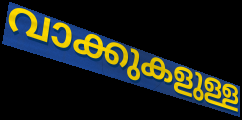
വാക്കുകളുള്ള